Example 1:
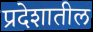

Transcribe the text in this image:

प्रदेशातील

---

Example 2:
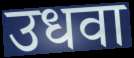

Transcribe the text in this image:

उधवा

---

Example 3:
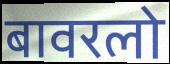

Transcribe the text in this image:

बावरलो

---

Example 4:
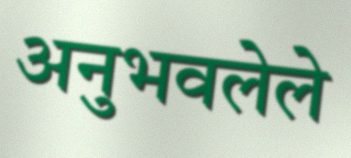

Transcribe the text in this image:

अनुभवलेले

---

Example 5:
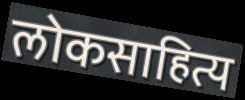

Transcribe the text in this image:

लोकसाहित्य